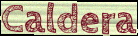
Caldera